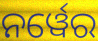
ନର୍ୱେର